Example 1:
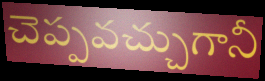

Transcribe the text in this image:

చెప్పవచ్చుగానీ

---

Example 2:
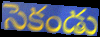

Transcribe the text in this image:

సెకండు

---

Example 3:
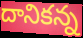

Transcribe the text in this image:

దానికన్న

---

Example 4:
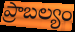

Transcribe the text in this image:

ప్రాబల్యం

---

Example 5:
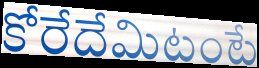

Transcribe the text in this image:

కోరేదేమిటంటే